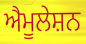
ਐਮੂਲੇਸ਼ਨ